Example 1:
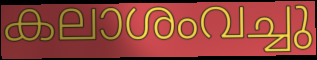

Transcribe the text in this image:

കലാശംവച്ചു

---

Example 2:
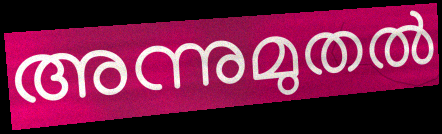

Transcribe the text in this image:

അന്നുമുതൽ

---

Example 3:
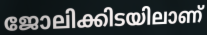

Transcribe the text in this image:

ജോലിക്കിടയിലാണ്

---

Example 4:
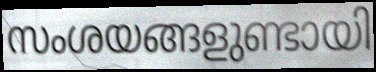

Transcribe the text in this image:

സംശയങ്ങളുണ്ടായി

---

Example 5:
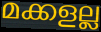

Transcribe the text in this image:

മക്കളല്ല